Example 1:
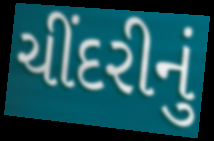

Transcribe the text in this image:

ચીંદરીનું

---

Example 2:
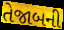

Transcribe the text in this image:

તેજાબની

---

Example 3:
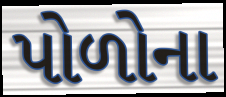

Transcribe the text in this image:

પોળોના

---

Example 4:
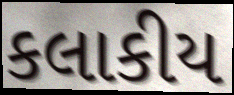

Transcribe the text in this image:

કલાકીય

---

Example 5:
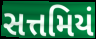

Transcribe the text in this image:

સત્તમિયં